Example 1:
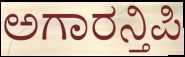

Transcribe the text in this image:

ಅಗಾರನ್ತಿಪಿ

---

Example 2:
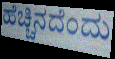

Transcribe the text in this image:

ಹೆಚ್ಚಿನದೆಂದು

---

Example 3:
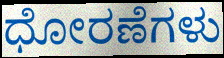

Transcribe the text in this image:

ಧೋರಣೆಗಳು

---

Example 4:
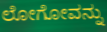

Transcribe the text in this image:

ಲೋಗೋವನ್ನು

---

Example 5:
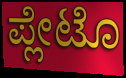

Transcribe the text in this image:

ಪ್ಲೇಟೊ